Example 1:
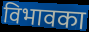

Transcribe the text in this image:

विभावका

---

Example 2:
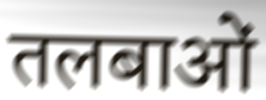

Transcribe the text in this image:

तलबाओं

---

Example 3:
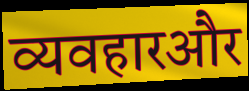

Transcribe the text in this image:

व्यवहारऔर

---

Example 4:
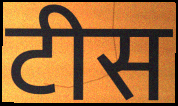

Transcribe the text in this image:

टीस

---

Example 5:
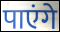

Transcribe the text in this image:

पाएंगे